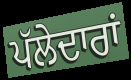
ਪੱਲੇਦਾਰਾਂ